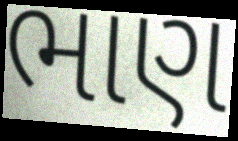
ભાણ